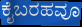
ಕೈಬರಹವೂ